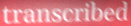
transcribed